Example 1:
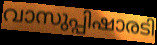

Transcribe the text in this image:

വാസുപ്പിഷാരടി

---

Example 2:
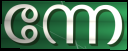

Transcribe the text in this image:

ന്നേ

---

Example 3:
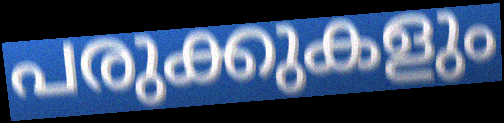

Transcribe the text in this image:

പരുക്കുകളും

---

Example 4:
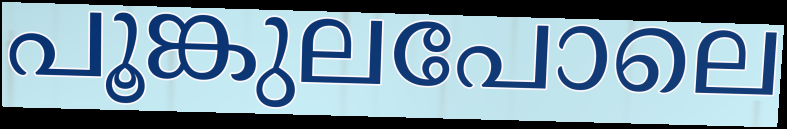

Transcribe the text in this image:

പൂങ്കുലപോലെ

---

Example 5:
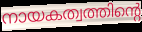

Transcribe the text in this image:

നായകത്വത്തിന്റെ